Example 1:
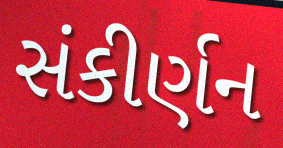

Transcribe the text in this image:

સંકીર્ણન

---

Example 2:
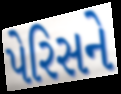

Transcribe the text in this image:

પેરિસને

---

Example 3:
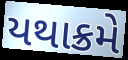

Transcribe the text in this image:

યથાક્રમે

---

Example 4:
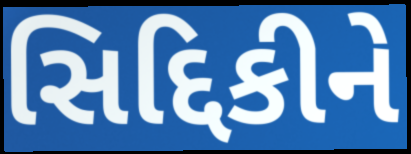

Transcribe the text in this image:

સિદ્દિકીને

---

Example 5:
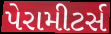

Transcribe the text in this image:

પેરામીટર્સ